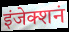
इंजेक्शनं